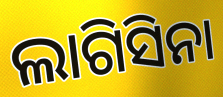
ଲାଗିସିନା